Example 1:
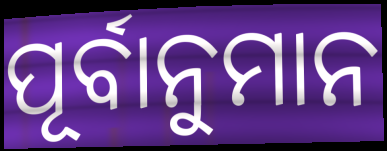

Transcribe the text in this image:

ପୂର୍ବାନୁମାନ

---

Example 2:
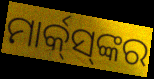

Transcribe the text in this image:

ମାର୍କ୍‌ସ୍‌ଙ୍କର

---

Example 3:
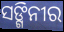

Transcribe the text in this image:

ସଙ୍ଗିନୀର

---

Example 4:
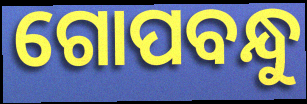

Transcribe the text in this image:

ଗୋପବନ୍ଧୁ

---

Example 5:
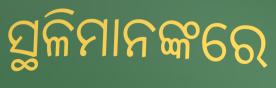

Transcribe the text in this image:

ସ୍ଥଳିମାନଙ୍କରେ